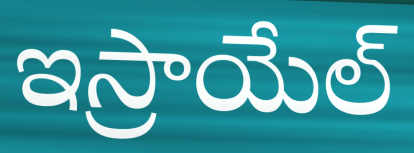
ఇస్రాయేల్